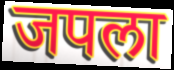
जपला